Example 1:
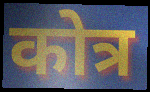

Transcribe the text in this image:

कोत्र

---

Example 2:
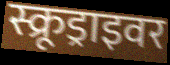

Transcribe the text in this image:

स्क्रूड्राइवर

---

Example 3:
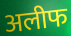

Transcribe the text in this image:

अलीफ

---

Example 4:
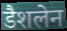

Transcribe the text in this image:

डैशलेन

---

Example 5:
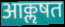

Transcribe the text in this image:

आकॢषत